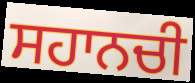
ਸਹਾਨਚੀ